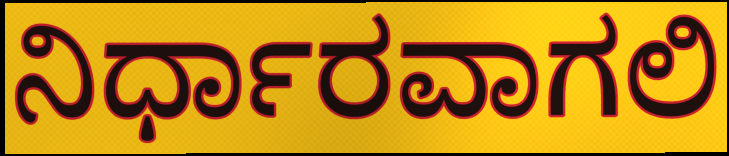
ನಿರ್ಧಾರವಾಗಲಿ